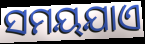
ସମୟଯାଏ